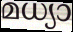
മധ്യാ